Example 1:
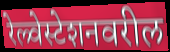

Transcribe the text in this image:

रेल्वेस्टेशनवरील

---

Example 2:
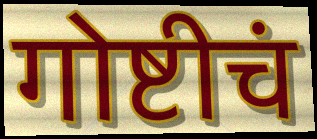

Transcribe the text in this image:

गोष्टीचं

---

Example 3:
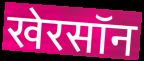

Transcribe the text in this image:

खेरसॉन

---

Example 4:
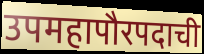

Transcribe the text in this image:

उपमहापौरपदाची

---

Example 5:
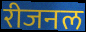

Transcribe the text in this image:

रीजनल